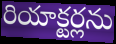
రియాక్టర్లను